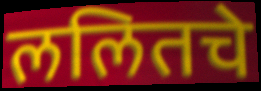
ललितचे